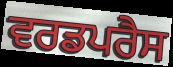
ਵਰਡਪਰੈਸ